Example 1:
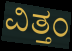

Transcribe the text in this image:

ವಿತ್ತಂ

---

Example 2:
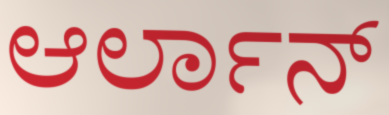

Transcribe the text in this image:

ಆರ್ಲಾನ್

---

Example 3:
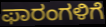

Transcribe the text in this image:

ಫಾರಂಗಳಿಗೆ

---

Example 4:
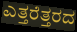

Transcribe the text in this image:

ಎತ್ತರೆತ್ತರದ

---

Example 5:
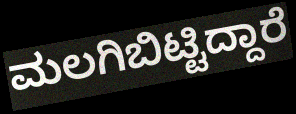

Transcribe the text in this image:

ಮಲಗಿಬಿಟ್ಟಿದ್ದಾರೆ